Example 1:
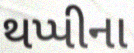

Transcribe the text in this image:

થપ્પીના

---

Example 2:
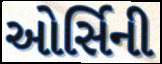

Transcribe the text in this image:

ઓર્સિની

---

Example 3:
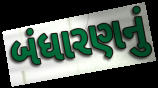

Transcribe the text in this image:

બંધારણનું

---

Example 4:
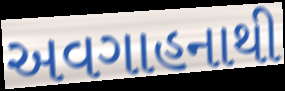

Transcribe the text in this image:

અવગાહનાથી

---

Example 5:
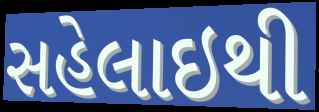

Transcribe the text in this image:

સહેલાઇથી